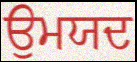
ਉਮਯਦ